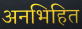
अनभिहित